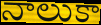
నాలుకా